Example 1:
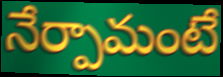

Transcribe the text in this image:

నేర్పామంటే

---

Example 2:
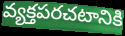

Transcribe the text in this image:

వ్యక్తపరచటానికి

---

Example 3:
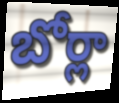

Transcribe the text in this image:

బోర్లా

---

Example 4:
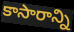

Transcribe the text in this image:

కాసారాన్ని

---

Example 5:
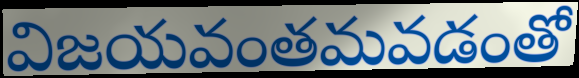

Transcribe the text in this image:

విజయవంతమవడంతో